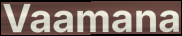
Vaamana